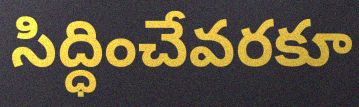
సిద్ధించేవరకూ